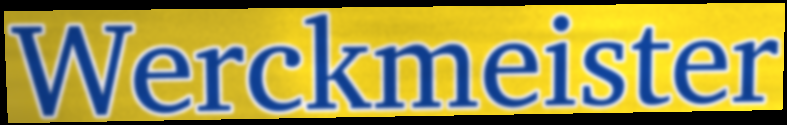
Werckmeister